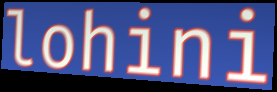
lohini